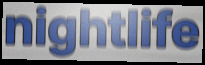
nightlife